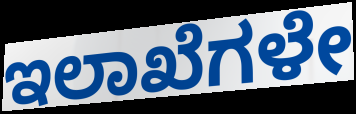
ಇಲಾಖೆಗಳೇ